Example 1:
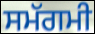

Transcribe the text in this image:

ਸਮੱਗਮੀ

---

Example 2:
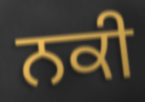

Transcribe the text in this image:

ਨਕੀ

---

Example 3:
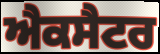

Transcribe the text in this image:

ਐਕਸੈਟਰ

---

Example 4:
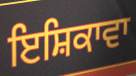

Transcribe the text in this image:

ਇਸ਼ਿਕਾਵਾ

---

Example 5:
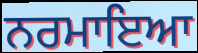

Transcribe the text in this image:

ਨਰਮਾਇਆ